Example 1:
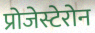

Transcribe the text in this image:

प्रोजेस्टेरोन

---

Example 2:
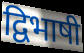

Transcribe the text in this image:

द्विभाषी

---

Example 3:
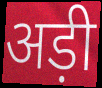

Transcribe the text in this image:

अड़ी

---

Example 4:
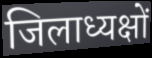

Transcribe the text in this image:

जिलाध्यक्षों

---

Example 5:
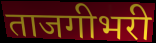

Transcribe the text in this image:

ताजगीभरी